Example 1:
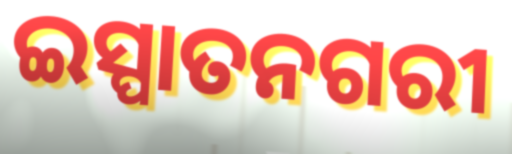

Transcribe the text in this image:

ଇସ୍ପାତନଗରୀ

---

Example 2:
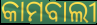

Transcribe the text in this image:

କାମବାଲୀ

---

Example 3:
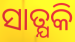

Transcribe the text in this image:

ସାତ୍ଯକି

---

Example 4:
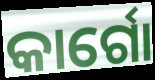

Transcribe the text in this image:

କାର୍ଗୋ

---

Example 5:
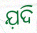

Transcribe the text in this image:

ଯ଼ଦି